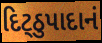
દિટ્ઠુપાદાનં